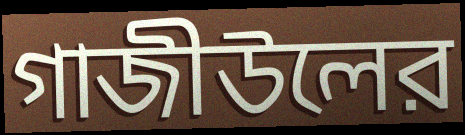
গাজীউলের